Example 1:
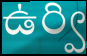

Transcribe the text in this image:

ఉర్వి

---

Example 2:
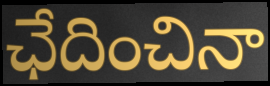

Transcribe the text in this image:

ఛేదించినా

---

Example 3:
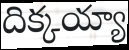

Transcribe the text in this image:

దిక్కయ్యా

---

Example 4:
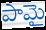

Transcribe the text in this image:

పామై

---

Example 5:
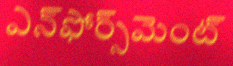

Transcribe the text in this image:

ఎన్‌ఫోర్స్‌మెంట్